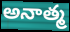
అనాత్మ